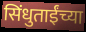
सिंधुताईंच्या